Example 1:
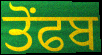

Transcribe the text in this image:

ਤੋਂਫਬ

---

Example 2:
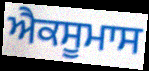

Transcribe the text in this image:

ਐਕਸੂਮਾਸ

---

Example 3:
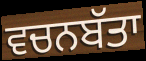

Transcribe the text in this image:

ਵਚਨਬੱਤਾ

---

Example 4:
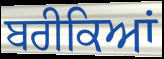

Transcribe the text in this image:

ਬਰੀਕਿਆਂ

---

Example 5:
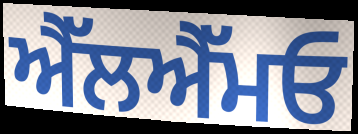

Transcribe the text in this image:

ਐੱਲਐੱਮਓ